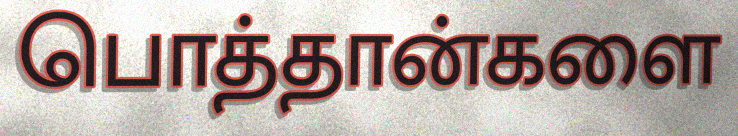
பொத்தான்களை